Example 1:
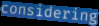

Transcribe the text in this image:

considering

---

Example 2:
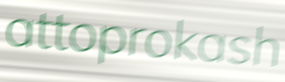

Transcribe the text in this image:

attoprokash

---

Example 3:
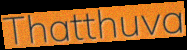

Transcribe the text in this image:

Thatthuva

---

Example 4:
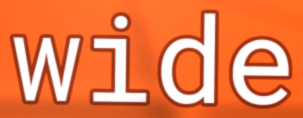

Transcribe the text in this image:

wide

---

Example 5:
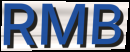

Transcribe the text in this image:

RMB